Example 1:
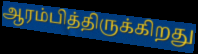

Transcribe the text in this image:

ஆரம்பித்திருக்கிறது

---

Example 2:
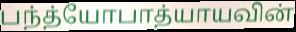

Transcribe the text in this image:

பந்த்யோபாத்யாயவின்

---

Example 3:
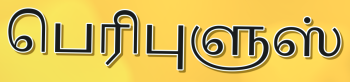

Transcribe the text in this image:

பெரிபுளுஸ்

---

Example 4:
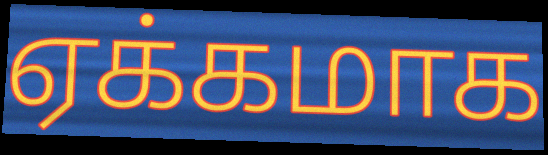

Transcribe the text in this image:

ஏக்கமாக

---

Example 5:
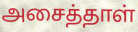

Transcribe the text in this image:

அசைத்தாள்